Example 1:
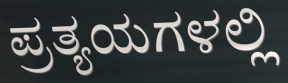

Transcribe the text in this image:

ಪ್ರತ್ಯಯಗಳಲ್ಲಿ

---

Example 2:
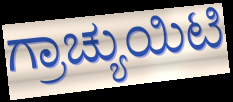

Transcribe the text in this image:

ಗ್ರಾಚ್ಯುಯಿಟಿ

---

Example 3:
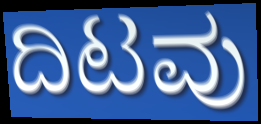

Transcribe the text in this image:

ದಿಟವು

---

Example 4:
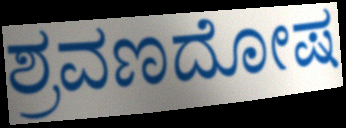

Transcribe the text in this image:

ಶ್ರವಣದೋಷ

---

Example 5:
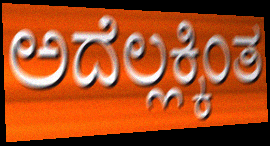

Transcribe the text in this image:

ಅದೆಲ್ಲಕ್ಕಿಂತ